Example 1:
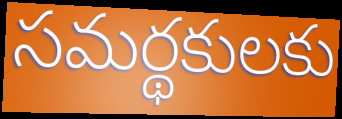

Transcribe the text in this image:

సమర్థకులకు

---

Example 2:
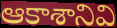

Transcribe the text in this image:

ఆకాశానివి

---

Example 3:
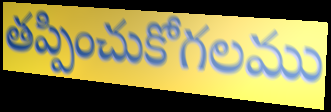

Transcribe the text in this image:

తప్పించుకోగలము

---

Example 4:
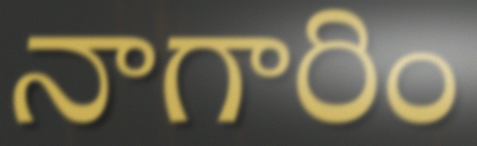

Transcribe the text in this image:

నాగారిం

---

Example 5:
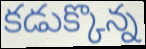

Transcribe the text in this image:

కడుక్కొన్న